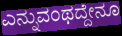
ಎನ್ನುವಂಥದ್ದೇನೂ